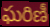
ఘరిణీ